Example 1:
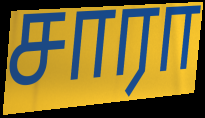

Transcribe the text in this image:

சாரா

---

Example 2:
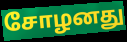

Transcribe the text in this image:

சோழனது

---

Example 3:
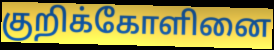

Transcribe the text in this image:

குறிக்கோளினை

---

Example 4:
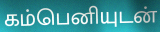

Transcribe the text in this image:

கம்பெனியுடன்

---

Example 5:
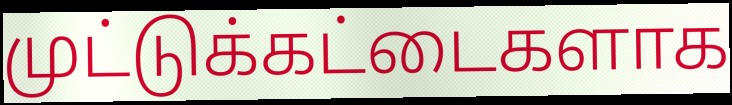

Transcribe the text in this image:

முட்டுக்கட்டைகளாக